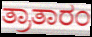
ತ್ರಾತಾರಂ